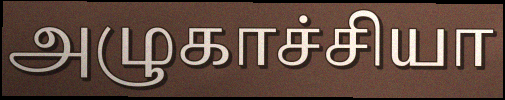
அழுகாச்சியா